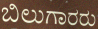
ಬಿಲುಗಾರರು